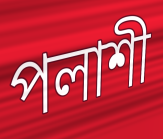
পলাশী